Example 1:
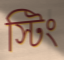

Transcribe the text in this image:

স্টিং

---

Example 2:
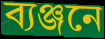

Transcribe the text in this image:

ব্যঞ্জনে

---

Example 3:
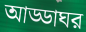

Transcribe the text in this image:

আড্ডাঘর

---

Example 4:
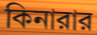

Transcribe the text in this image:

কিনারার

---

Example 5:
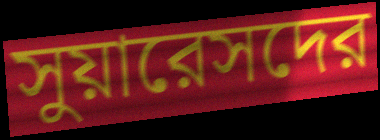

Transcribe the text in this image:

সুয়ারেসদের